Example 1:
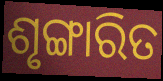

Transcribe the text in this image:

ଶୃଙ୍ଗାରିତ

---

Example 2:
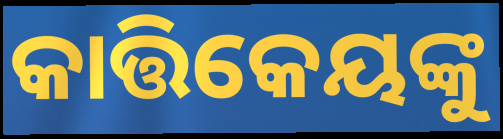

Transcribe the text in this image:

କାତ୍ତିକେୟଙ୍କୁ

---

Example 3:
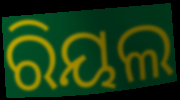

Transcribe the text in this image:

ରିୟଲ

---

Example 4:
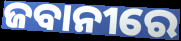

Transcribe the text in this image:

ଜବାନୀରେ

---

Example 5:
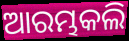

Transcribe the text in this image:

ଆରମ୍ଭକଲି